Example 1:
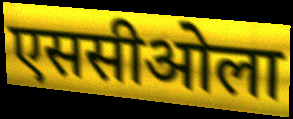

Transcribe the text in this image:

एससीओला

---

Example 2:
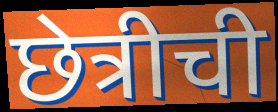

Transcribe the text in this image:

छेत्रीची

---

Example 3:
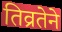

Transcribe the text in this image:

तिव्रतेने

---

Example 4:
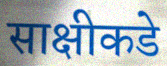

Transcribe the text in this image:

साक्षीकडे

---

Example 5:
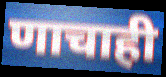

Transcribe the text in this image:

णाचाही